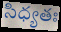
సిధ్యతః